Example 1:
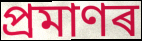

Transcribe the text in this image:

প্ৰমাণৰ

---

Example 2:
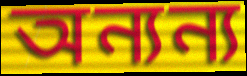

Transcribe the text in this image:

অন্যন্য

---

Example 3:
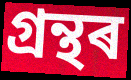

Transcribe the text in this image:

গ্ৰন্থৰ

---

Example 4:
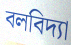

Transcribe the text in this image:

বলবিদ্যা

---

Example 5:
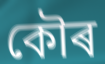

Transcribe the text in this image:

কৌৰ